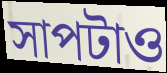
সাপটাও